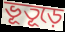
ভূতূড়ে